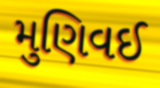
મુણિવઈ